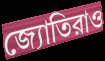
জ্যোতিরাও